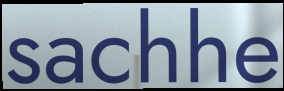
sachhe